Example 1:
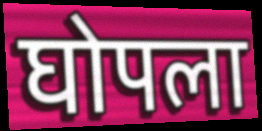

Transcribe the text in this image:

घोपला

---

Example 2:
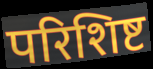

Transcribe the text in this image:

परिशिष्ट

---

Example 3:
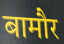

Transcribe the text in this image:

बामौर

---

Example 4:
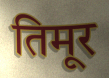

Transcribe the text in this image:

तिमूर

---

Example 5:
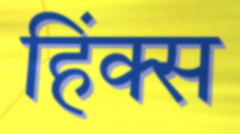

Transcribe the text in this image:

हिंक्स